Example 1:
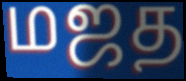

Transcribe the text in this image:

மஜத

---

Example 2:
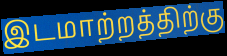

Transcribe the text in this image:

இடமாற்றத்திற்கு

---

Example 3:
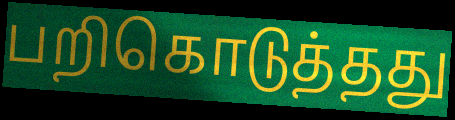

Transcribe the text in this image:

பறிகொடுத்தது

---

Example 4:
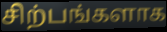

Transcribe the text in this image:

சிற்பங்களாக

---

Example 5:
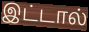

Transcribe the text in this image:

இட்டால்